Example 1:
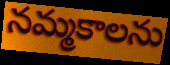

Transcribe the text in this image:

నమ్మకాలను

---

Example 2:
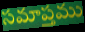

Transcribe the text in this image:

సమాప్తము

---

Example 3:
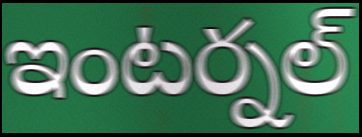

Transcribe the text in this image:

ఇంటర్నల్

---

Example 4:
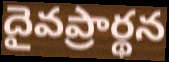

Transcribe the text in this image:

దైవప్రార్థన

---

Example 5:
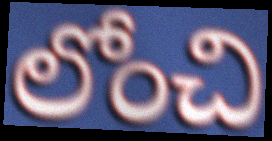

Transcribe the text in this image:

లోంచి